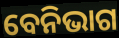
ବେନିଭାଗ